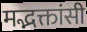
मद्भक्तांसी